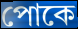
পোকে